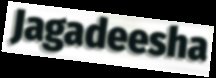
Jagadeesha